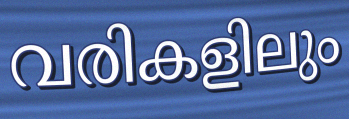
വരികളിലും